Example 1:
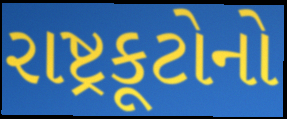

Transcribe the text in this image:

રાષ્ટ્રકૂટોનો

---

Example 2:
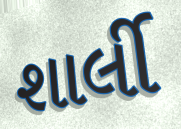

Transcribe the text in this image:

શાર્લી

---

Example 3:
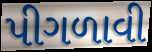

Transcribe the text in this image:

પીગળાવી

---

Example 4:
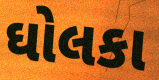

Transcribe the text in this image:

ઘોલકા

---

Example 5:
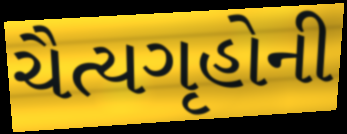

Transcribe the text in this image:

ચૈત્યગૃહોની